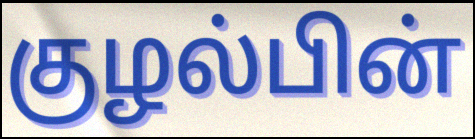
குழல்பின்